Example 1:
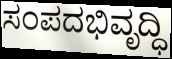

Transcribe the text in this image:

ಸಂಪದಭಿವೃದ್ಧಿ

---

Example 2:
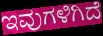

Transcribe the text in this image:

ಇವುಗಳಿಗಿದೆ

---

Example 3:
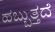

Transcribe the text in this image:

ಹಬ್ಬುತ್ತದೆ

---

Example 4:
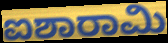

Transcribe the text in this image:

ಐಶಾರಾಮಿ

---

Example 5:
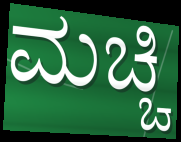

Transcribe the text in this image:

ಮಚ್ಚಿ